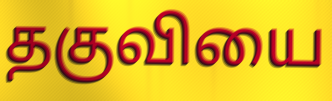
தகுவியை